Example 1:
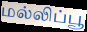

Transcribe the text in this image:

மல்லிப்பூ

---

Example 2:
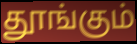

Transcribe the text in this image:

தூங்கும்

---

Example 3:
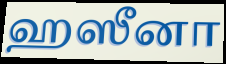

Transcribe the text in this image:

ஹஸீனா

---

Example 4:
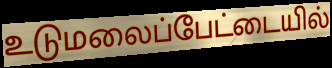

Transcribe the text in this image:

உடுமலைப்பேட்டையில்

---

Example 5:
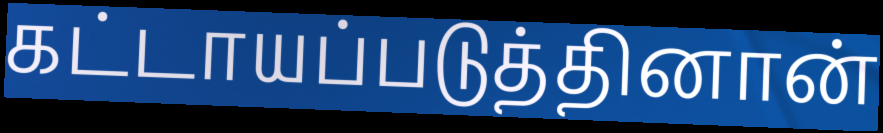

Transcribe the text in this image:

கட்டாயப்படுத்தினான்